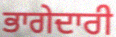
ਭਾਗੇਦਾਰੀ